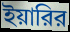
ইয়ারির